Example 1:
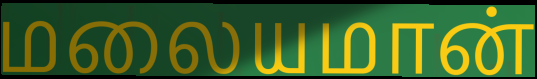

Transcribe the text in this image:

மலையமான்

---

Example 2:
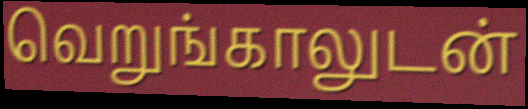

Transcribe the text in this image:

வெறுங்காலுடன்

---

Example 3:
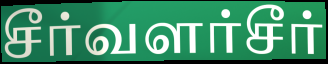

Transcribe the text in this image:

சீர்வளர்சீர்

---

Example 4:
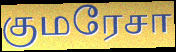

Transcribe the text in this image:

குமரேசா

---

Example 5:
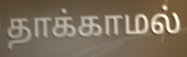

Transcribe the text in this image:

தாக்காமல்